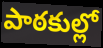
పాఠకుల్లో